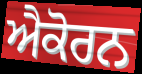
ਐਕੋਰਨ